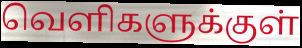
வெளிகளுக்குள்